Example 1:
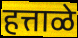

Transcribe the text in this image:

हत्ताळे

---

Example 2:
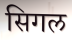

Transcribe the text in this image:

सिगल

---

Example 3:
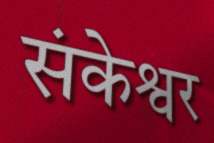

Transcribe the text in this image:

संकेश्वर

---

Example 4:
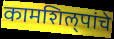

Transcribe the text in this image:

कामशिल्पांचे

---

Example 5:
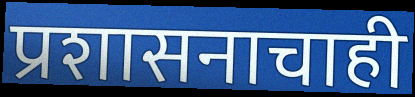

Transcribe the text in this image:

प्रशासनाचाही